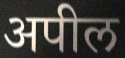
अपील